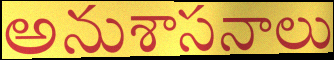
అనుశాసనాలు